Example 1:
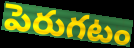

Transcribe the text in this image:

పెరుగటం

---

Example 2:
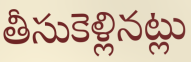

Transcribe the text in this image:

తీసుకెళ్లినట్లు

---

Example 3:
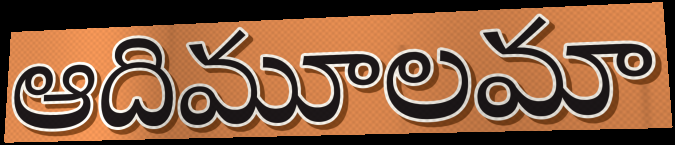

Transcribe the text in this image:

ఆదిమూలమా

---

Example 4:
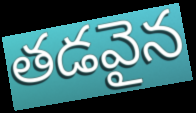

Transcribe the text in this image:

తడవైన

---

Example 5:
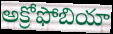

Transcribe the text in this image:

అక్రోఫోబియా